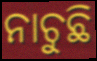
ନାଚୁଛି